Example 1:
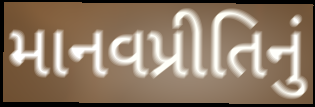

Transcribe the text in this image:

માનવપ્રીતિનું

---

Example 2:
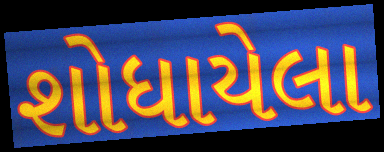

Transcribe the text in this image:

શોધાયેલા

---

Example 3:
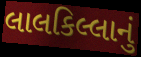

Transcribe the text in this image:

લાલકિલ્લાનું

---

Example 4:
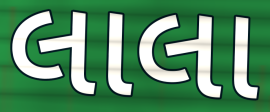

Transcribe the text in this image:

લાલા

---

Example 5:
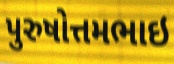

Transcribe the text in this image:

પુરુષોત્તમભાઇ